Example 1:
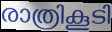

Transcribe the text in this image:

രാത്രികൂടി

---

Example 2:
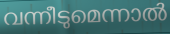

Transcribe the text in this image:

വന്നീടുമെന്നാൽ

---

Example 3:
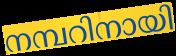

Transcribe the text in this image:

നമ്പറിനായി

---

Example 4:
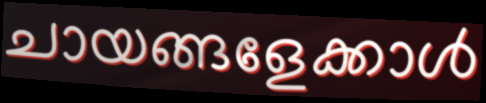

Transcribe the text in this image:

ചായങ്ങളേക്കാൾ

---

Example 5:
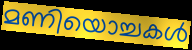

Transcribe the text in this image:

മണിയൊച്ചകൾ